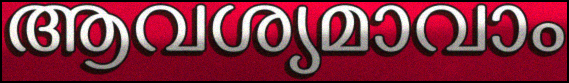
ആവശ്യമാവാം